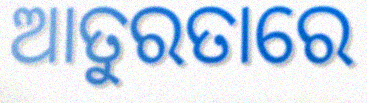
ଆତୁରତାରେ